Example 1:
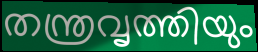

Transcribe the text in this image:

തന്ത്രവൃത്തിയും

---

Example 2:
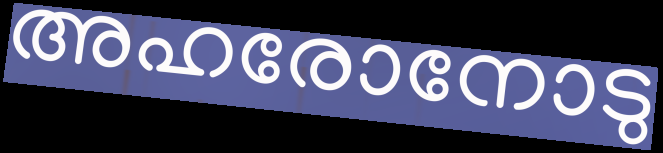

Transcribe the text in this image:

അഹരോനോടു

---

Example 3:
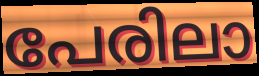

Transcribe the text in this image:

പേരിലാ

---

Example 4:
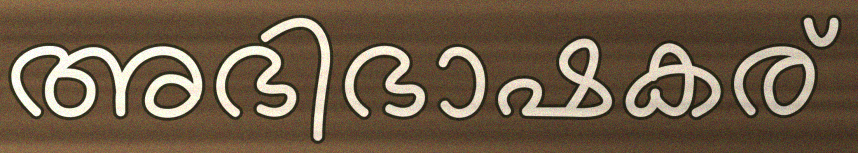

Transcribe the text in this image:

അഭിഭാഷകര്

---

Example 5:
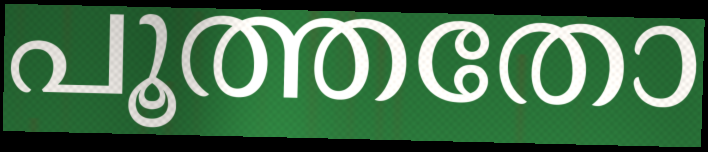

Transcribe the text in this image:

പൂത്തതോ